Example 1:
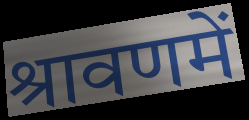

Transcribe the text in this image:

श्रावणमें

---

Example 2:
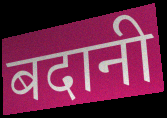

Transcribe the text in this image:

बदानी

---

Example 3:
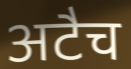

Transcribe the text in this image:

अटैच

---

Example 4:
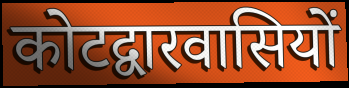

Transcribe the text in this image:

कोटद्वारवासियों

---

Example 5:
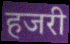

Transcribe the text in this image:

हजरी